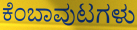
ಕೆಂಬಾವುಟಗಳು